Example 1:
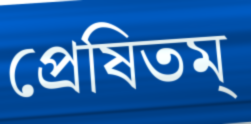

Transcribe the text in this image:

প্রেষিতম্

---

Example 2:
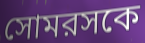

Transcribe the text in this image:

সোমরসকে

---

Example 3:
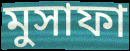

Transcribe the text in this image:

মুসাফা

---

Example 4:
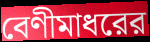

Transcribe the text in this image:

বেণীমাধরের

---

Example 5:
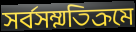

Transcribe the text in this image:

সর্বসম্মতিক্রমে